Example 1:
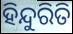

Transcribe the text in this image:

ହିନ୍ଦୁରିତି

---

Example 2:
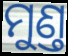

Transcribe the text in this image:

ମୁଣ୍ତ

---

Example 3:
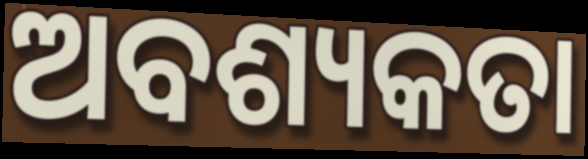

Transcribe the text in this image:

ଅବଶ୍ୟକତା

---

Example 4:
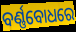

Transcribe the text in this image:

ବର୍ଣ୍ଣବୋଧରେ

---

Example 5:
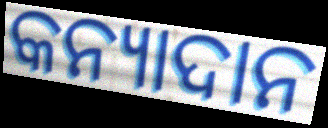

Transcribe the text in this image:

କନ୍ୟାଦାନ